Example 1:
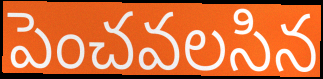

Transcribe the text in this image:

పెంచవలసిన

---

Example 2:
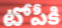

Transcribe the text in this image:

టోపీకి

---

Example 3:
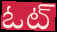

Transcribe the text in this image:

ఓట్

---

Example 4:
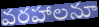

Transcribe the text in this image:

వరహాలనూ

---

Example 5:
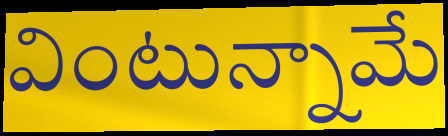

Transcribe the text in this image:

వింటున్నామే